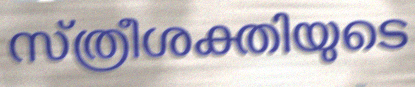
സ്‌ത്രീശക്തിയുടെ